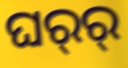
ଘର୍‍ର୍